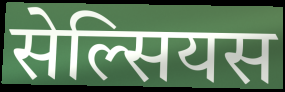
सेल्सियस